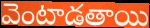
వెంటాడతాయి